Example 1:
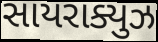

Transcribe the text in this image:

સાયરાક્યુઝ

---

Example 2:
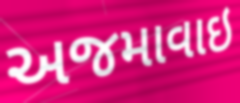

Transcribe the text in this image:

અજમાવાઇ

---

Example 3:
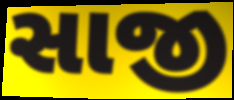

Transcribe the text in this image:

સાજી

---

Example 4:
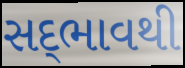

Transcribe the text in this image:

સદ્‍ભાવથી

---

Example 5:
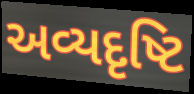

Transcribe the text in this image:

અવ્યદૃષ્ટિ